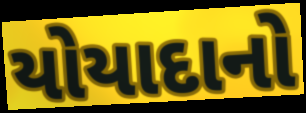
યોયાદાનો